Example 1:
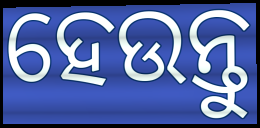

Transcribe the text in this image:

ହେଉନ୍ତୁ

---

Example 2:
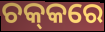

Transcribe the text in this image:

ଚକ୍‌କରେ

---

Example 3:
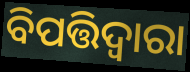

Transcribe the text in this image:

ବିପତ୍ତିଦ୍ୱାରା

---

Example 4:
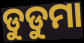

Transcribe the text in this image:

ଡୁଡୁମା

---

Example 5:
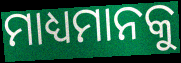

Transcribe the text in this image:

ମାଧ୍ଯମାନକୁ